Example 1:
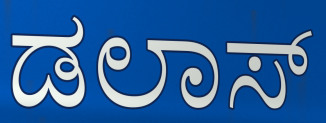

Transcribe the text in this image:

ಡಲಾಸ್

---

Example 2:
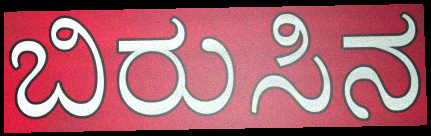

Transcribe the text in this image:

ಬಿರುಸಿನ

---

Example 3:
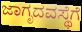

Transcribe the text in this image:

ಜಾಗೃದವಸ್ಥೆಗೆ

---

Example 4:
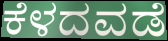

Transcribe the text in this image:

ಕೆಳದವಡೆ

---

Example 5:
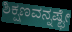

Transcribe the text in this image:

ಶಿಕ್ಷಣವನ್ನಷ್ಟೇ